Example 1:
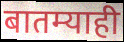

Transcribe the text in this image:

बातम्याही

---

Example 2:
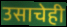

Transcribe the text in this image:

उसाचेही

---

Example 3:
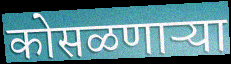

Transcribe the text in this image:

कोसळणाऱ्या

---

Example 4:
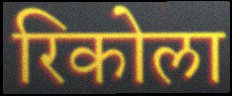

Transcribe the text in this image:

रिकोला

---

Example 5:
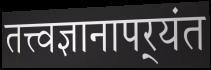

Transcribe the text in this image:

तत्त्वज्ञानापर्यंत